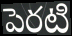
పెరటి